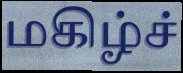
மகிழ்ச்